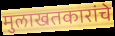
मुलाखतकारांचे